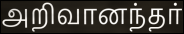
அறிவானந்தர்